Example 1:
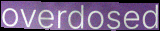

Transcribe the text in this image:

overdosed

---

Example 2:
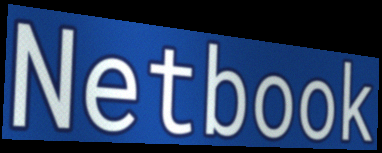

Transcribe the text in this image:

Netbook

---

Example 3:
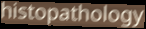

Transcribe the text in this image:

histopathology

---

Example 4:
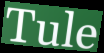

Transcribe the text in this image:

Tule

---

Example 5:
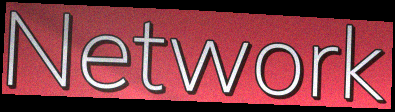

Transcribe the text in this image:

Network